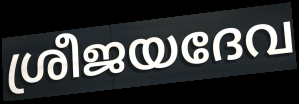
ശ്രീജയദേവ